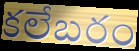
కలేబరం